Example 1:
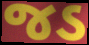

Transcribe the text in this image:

જડ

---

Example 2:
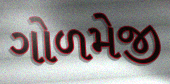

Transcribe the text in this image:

ગોળમેજી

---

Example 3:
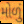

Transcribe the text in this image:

મોળું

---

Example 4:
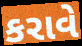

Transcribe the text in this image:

કરાવે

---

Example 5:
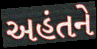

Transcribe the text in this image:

અહંતને